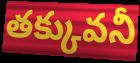
తక్కువనీ